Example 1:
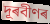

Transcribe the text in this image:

দূৰবীণৰ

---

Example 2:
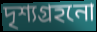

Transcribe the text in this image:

দৃশ্যগ্ৰহনো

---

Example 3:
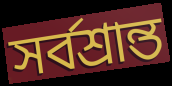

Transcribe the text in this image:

সৰ্বশ্ৰান্ত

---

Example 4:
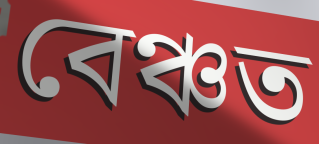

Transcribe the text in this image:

বেঞ্চত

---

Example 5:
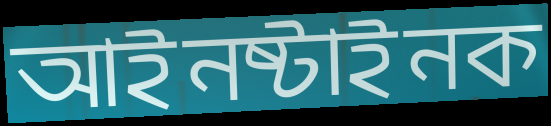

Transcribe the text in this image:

আইনষ্টাইনক